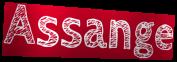
Assange